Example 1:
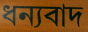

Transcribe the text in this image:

ধন্যবাদ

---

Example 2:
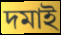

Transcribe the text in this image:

দমাই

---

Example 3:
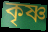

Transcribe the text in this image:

কৃষ্ণ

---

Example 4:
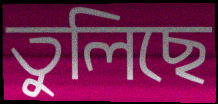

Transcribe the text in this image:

তুলিছে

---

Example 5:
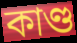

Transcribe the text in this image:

কাণ্ড